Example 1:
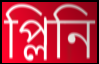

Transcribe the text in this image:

প্লিনি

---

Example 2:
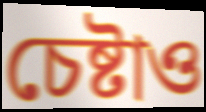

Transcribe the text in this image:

চেষ্টাও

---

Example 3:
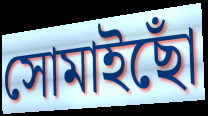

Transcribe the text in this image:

সোমাইছোঁ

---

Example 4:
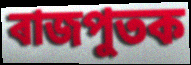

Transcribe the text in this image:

ৰাজপুতক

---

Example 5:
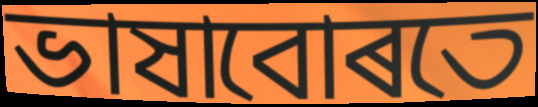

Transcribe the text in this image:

ভাষাবোৰতে